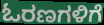
ಓರಣಗಳಿಗೆ